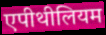
एपीथीलियम